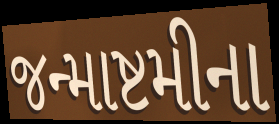
જન્માષ્ટમીના